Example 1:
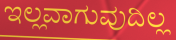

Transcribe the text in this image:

ಇಲ್ಲವಾಗುವುದಿಲ್ಲ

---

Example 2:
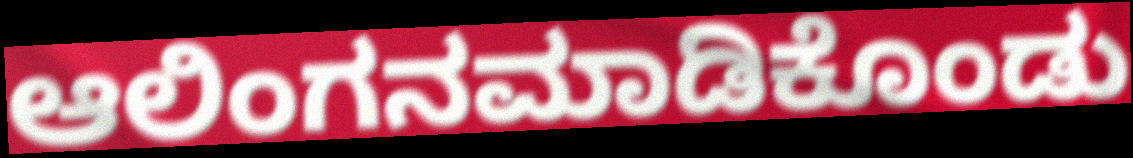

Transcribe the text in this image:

ಆಲಿಂಗನಮಾಡಿಕೊಂಡು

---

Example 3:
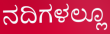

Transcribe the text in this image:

ನದಿಗಳಲ್ಲೂ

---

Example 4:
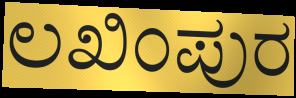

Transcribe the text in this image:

ಲಖಿಂಪುರ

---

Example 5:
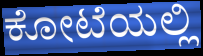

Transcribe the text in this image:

ಕೋಟೆಯಲ್ಲಿ